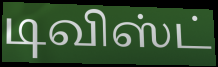
டிவிஸ்ட்